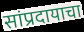
सांप्रदायाचा